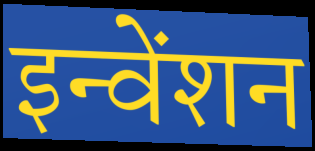
इन्वेंशन